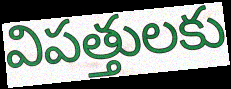
విపత్తులకు